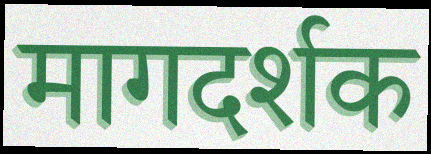
मागदर्शक